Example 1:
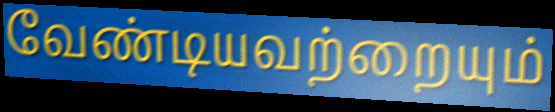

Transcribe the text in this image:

வேண்டியவற்றையும்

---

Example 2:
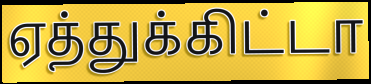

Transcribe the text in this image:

ஏத்துக்கிட்டா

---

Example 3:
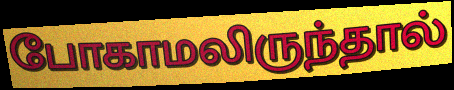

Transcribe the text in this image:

போகாமலிருந்தால்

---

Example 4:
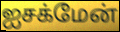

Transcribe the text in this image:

ஐசக்மேன்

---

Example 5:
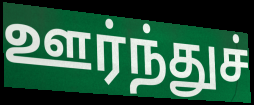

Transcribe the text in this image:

ஊர்ந்துச்